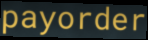
payorder